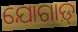
ଯୋଗାଡ଼୍